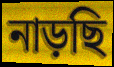
নাড়ছি